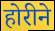
होरीने